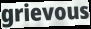
grievous